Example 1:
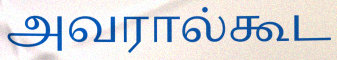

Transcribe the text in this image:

அவரால்கூட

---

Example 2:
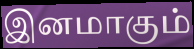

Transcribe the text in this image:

இனமாகும்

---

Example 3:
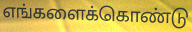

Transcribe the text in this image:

எங்களைக்கொண்டு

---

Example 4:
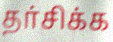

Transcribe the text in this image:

தர்சிக்க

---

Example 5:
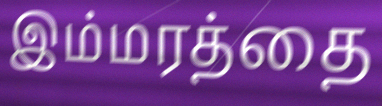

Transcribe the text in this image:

இம்மரத்தை